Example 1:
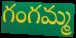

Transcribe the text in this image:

గంగమ్మ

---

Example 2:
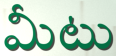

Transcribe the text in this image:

మీటు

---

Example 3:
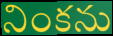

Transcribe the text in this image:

నింకను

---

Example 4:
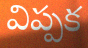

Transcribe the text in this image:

విప్పక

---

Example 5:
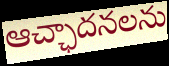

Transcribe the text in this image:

ఆచ్ఛాదనలను